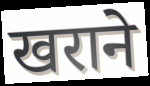
खराने